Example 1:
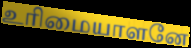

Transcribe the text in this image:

உரிமையாளனே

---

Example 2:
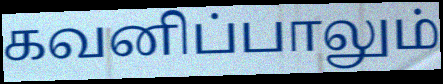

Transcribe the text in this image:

கவனிப்பாலும்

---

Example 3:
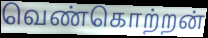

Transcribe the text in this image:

வெண்கொற்றன்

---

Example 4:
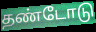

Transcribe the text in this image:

தண்டோடு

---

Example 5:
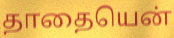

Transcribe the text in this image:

தாதையென்